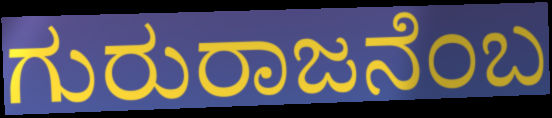
ಗುರುರಾಜನೆಂಬ